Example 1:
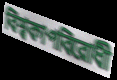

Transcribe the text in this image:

বিশ্বকাপবিরোধী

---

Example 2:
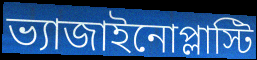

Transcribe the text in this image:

ভ্যাজাইনোপ্লাস্টি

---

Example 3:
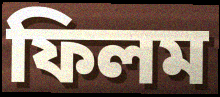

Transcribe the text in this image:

ফিলম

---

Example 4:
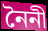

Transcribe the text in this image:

নৈনী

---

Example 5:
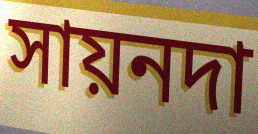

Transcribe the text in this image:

সায়নদা